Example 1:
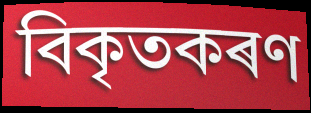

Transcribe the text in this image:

বিকৃতকৰণ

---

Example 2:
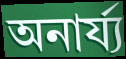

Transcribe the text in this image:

অনাৰ্য্য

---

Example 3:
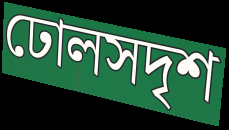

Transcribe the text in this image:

ঢোলসদৃশ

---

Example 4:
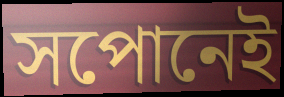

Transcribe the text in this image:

সপোনেই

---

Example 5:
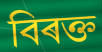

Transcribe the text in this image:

বিৰক্ত